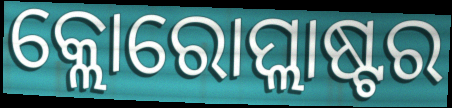
କ୍ଲୋରୋପ୍ଲାଷ୍ଟର